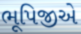
ભૂપિજીએ